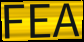
FEA